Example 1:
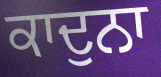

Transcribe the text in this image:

ਕਾਦੁਨਾ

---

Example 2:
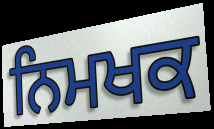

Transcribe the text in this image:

ਨਿਮਖਕ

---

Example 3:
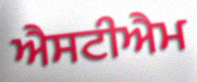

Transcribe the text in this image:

ਐਸਟੀਐਮ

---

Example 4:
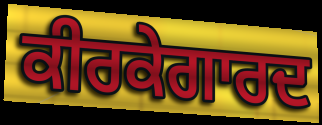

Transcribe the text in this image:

ਕੀਰਕੇਗਾਰਦ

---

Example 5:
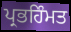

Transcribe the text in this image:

ਪ੍ਰਭਹਿੰਮਤ